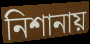
নিশানায়